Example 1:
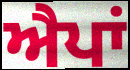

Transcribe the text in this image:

ਐਪਾਂ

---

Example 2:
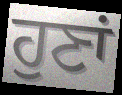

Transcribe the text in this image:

ਹੁਣਾਂ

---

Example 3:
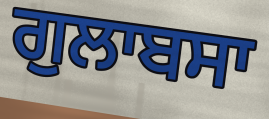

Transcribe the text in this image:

ਗੁਲਾਬਸਾ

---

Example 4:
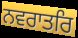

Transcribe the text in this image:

ਨਵਰਾਤਰਿ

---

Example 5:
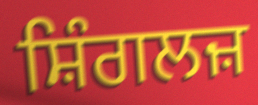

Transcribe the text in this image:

ਸ਼ਿੰਗਲਜ਼